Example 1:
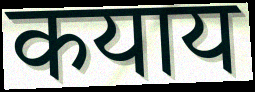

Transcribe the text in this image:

कयाय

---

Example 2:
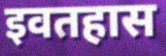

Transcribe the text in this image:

इवतहास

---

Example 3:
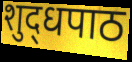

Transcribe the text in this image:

शुद्धपाठ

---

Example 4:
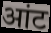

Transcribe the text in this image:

आंट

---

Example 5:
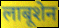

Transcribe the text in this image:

लाबूशेन